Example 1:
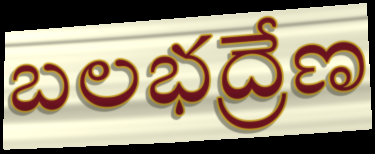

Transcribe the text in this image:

బలభద్రేణ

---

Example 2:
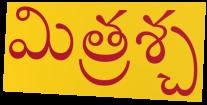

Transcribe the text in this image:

మిత్రశ్చ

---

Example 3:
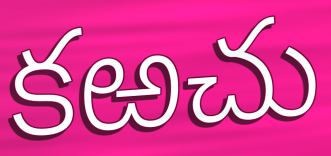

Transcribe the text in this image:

కఱచు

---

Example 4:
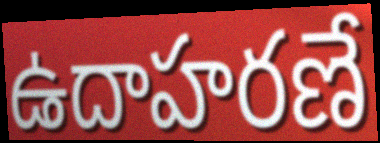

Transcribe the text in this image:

ఉదాహరణే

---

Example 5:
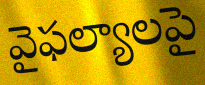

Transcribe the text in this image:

వైఫల్యాలపై